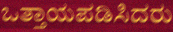
ಒತ್ತಾಯಪಡಿಸಿದರು